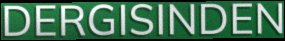
DERGISINDEN